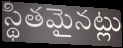
స్థితమైనట్లు